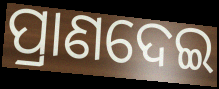
ପ୍ରାଣଦେଇ